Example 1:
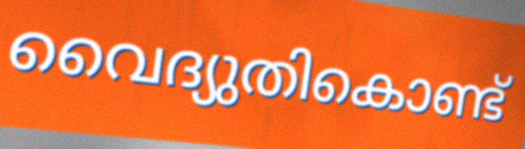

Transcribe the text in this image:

വൈദ്യുതികൊണ്ട്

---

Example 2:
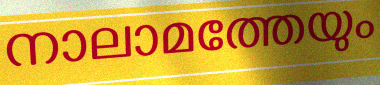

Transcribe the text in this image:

നാലാമത്തേയും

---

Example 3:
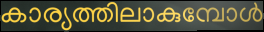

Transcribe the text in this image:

കാര്യത്തിലാകുമ്പോൾ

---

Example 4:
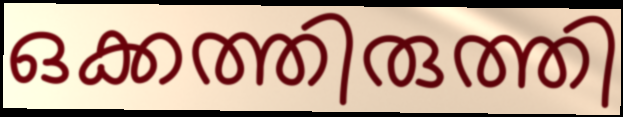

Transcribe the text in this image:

ഒക്കത്തിരുത്തി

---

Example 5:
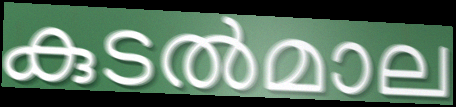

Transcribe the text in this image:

കുടൽമാല